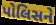
પોલિસને